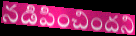
నడిపించిందని